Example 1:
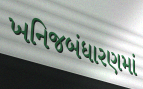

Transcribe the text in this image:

ખનિજબંધારણમાં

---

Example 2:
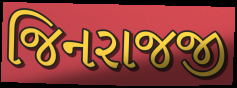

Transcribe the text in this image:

જિનરાજજી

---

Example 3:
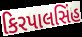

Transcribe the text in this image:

કિરપાલસિંહ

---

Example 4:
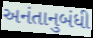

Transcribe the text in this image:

અનંતાનુબંધી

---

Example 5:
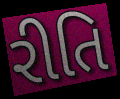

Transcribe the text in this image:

રીતિ